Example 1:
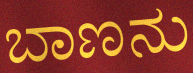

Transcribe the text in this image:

ಬಾಣನು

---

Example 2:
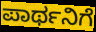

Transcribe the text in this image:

ಪಾರ್ಥನಿಗೆ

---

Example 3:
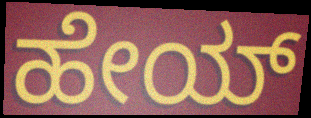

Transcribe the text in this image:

ಹೇಯ್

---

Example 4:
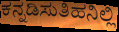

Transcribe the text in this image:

ಕನ್ನಡಿಸುತಿಹನಿಲ್ಲಿ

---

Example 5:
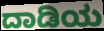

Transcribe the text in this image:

ದಾಡಿಯ